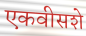
एकवीसशे